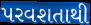
પરવશતાથી